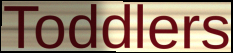
Toddlers